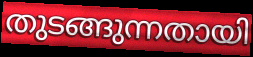
തുടങ്ങുന്നതായി